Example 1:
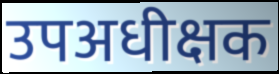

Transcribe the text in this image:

उपअधीक्षक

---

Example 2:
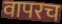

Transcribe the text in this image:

वापरच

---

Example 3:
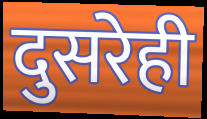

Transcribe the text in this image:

दुसरेही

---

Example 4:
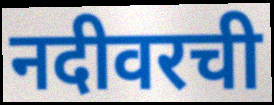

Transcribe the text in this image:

नदीवरची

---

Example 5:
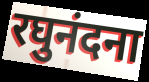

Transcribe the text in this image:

रघुनंदना